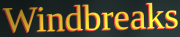
Windbreaks